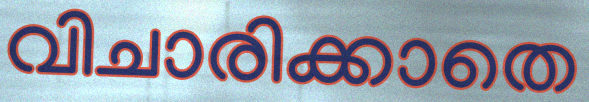
വിചാരിക്കാതെ